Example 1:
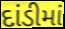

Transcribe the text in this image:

દાંડીમાં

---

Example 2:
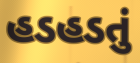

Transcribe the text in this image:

હડહડતું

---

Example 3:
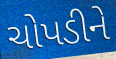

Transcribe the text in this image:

ચોપડીને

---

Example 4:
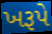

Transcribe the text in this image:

ખરૂપે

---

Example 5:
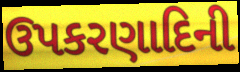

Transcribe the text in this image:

ઉપકરણાદિની